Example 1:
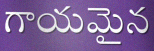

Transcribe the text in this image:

గాయమైన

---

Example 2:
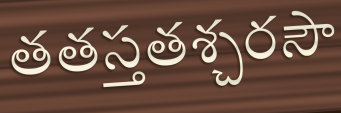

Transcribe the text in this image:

తతస్తతశ్చరసౌ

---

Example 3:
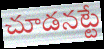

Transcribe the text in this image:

చూడనట్టే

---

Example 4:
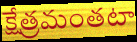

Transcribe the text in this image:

క్షేత్రమంతటా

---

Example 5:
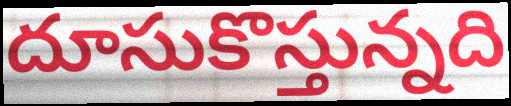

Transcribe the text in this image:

దూసుకొస్తున్నది